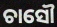
ଚାସୌ